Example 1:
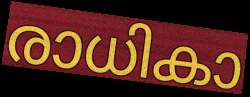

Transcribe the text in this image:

രാധികാ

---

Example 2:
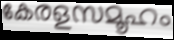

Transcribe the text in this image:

കേരളസമൂഹം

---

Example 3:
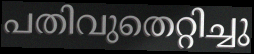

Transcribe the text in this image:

പതിവുതെറ്റിച്ചു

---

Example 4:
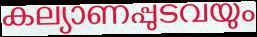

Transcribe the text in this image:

കല്യാണപ്പുടവയും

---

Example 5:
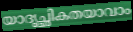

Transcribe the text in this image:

യാദൃച്ഛികതയാവാം